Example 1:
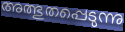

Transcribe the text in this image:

അത്ഭുതപ്പെടുന്നു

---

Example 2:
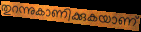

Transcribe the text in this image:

തുറന്നുകാണിക്കുകയാണ്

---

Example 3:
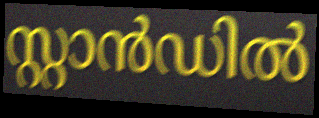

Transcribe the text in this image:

സ്റ്റാൻഡിൽ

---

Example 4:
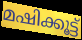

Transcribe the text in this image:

മഷിക്കൂട്ട്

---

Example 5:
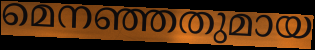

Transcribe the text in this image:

മെനഞ്ഞതുമായ